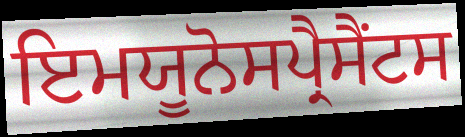
ਇਮਯੂਨੋਸਪ੍ਰੈਸੈਂਟਸ